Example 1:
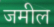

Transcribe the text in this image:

जमील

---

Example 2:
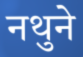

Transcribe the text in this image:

नथुने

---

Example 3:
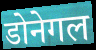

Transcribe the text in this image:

डोनेगल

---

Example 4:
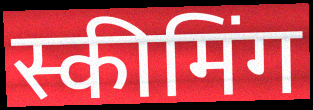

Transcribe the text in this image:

स्कीमिंग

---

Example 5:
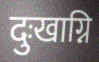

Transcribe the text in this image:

दुःखाग्नि